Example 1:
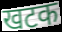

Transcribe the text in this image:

खटक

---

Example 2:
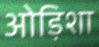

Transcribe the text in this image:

ओड़िशा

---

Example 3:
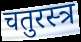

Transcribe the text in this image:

चतुरस्त्र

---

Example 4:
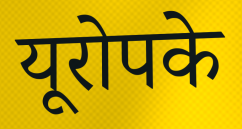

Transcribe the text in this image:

यूरोपके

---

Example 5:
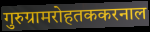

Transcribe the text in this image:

गुरुग्रामरोहतककरनाल